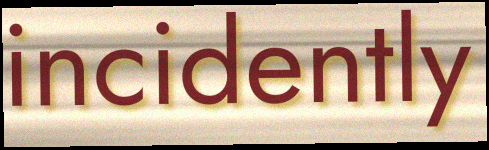
incidently